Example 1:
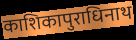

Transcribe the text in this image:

काशिकापुराधिनाथ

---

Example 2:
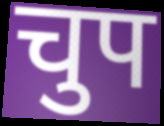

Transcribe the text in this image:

चुप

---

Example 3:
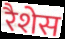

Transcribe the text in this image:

रैशेस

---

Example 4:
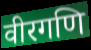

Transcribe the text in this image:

वीरगणि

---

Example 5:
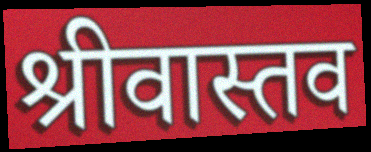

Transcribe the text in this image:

श्रीवास्तव